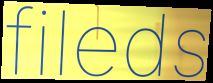
fileds